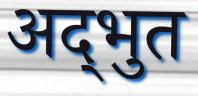
अद्‍भुत